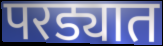
परड्यात